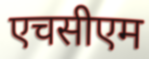
एचसीएम